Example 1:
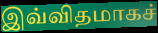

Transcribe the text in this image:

இவ்விதமாகச்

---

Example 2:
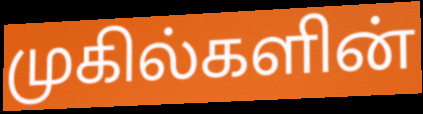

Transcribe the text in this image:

முகில்களின்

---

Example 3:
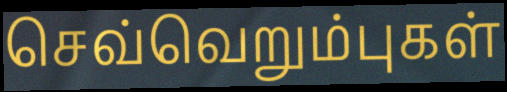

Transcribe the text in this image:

செவ்வெறும்புகள்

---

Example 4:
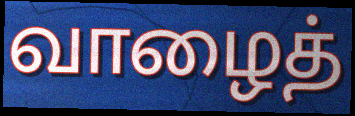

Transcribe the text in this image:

வாழைத்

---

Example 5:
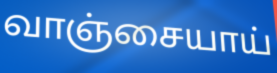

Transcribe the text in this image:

வாஞ்சையாய்